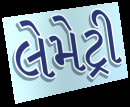
લેમેટ્રી